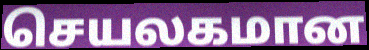
செயலகமான